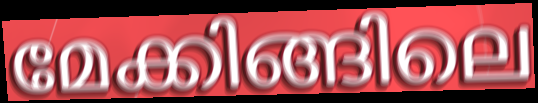
മേക്കിങ്ങിലെ